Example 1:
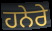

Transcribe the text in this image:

ਹਨੇਰੇ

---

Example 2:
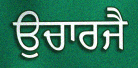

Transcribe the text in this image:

ਉਚਾਰਜੈ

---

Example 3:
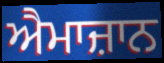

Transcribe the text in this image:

ਐਮਾਜ਼ਾਨ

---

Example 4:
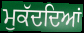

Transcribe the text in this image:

ਮੁਕੱਦਦਿਆਂ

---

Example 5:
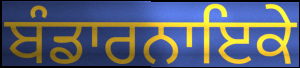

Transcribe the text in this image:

ਬੰਡਾਰਨਾਇਕੇ